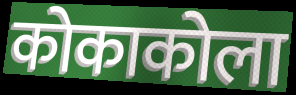
कोकाकोला